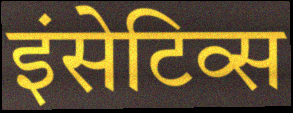
इंसेटिव्स